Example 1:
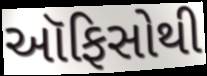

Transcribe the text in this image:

ઑફિસોથી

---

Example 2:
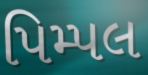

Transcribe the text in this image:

પિમ્પલ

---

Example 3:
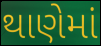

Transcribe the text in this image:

થાણેમાં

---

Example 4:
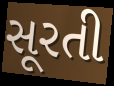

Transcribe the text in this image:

સૂરતી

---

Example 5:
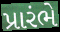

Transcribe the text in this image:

પ્રારંભે